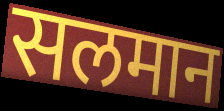
सलमान